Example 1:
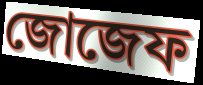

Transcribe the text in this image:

জোজেফ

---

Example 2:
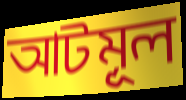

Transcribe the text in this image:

আটমূল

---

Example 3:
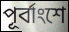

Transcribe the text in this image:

পূর্বাংশে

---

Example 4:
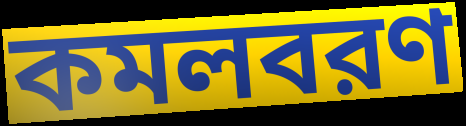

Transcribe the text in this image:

কমলবরণ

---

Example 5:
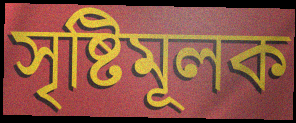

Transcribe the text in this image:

সৃষ্টিমূলক